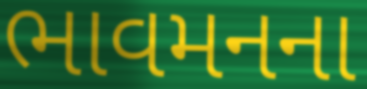
ભાવમનના